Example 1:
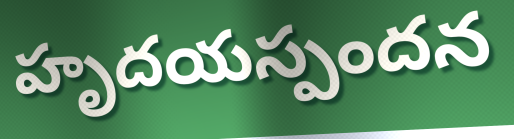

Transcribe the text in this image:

హృదయస్పందన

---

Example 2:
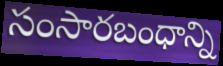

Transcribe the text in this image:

సంసారబంధాన్ని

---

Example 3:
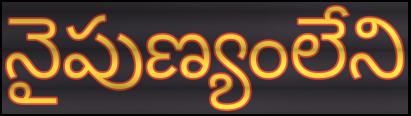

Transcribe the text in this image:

నైపుణ్యంలేని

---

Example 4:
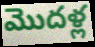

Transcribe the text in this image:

మొదళ్ల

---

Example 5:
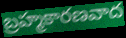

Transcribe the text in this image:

బ్రహ్మకారణవాద